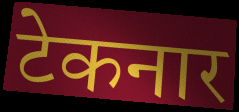
टेकनार